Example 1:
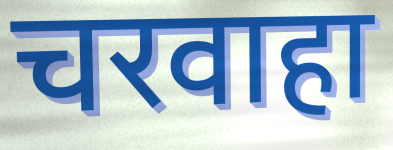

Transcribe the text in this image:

चरवाहा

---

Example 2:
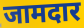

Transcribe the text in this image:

जामदार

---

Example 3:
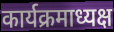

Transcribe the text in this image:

कार्यक्रमाध्यक्ष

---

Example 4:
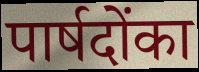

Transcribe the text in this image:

पार्षदोंका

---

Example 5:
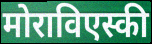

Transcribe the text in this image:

मोराविएस्की